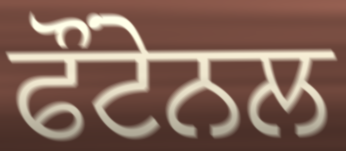
ਫੌਂਟੇਨਲ